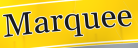
Marquee